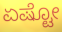
ಏಷ್ಟೋ